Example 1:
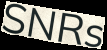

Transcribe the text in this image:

SNRs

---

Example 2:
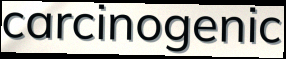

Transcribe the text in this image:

carcinogenic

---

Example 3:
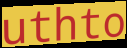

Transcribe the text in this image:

uthto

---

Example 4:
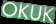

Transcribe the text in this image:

OKUK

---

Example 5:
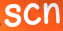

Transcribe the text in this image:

scn